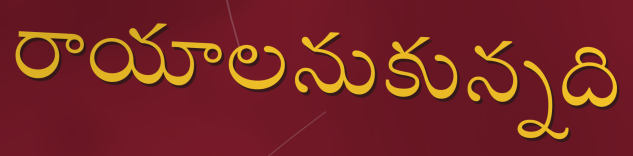
రాయాలనుకున్నది